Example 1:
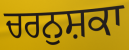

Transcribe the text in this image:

ਚਰਨੁਸ਼ਕਾ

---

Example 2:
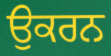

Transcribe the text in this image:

ਉਕਰਨ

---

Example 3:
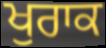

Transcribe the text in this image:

ਖੁਰਾਕ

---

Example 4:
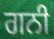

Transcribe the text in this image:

ਗਨੀ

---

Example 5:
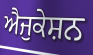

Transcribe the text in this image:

ਐਜੁਕੇਸ਼ਨ